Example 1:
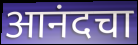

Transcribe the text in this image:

आनंदचा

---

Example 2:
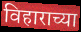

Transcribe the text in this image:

विहाराच्या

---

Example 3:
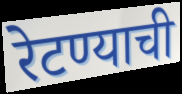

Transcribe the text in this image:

रेटण्याची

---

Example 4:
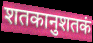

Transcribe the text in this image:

शतकानुशतकं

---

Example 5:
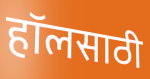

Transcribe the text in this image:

हॉलसाठी